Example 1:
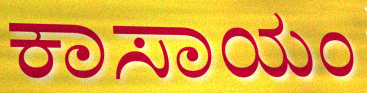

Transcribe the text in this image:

ಕಾಸಾಯಂ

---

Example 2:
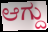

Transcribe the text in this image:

ಆಗ್ದು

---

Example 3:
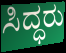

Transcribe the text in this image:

ಸಿದ್ಧರು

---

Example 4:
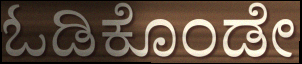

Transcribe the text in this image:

ಓಡಿಕೊಂಡೇ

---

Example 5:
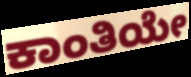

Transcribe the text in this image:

ಕಾಂತಿಯೇ